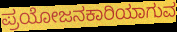
ಪ್ರಯೋಜನಕಾರಿಯಾಗುವ